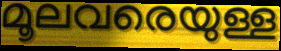
മൂലവരെയുള്ള